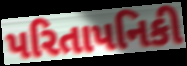
પરિતાપનિકી